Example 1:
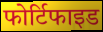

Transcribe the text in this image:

फोर्टिफाइड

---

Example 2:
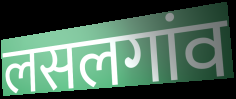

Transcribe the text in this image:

लसलगांव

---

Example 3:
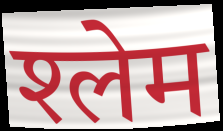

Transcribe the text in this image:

श्लेम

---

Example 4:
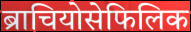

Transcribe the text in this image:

ब्राचियोसेफिलिक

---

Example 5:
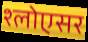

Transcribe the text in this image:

श्लोएसर